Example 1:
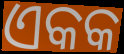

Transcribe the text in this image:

ଏକକ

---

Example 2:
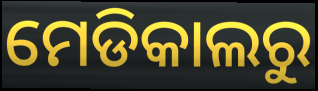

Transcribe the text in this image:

ମେଡିକାଲରୁ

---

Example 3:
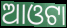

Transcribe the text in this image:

ଆଓଟା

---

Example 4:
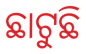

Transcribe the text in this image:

ଛାଟୁଛି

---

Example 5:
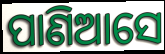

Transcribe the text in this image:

ପାଣିଆସେ